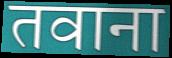
तवाना